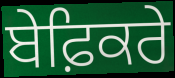
ਬੇਫ਼ਿਕਰੇ